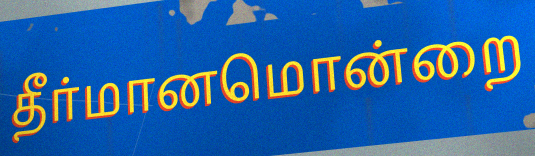
தீர்மானமொன்றை